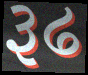
રૂઢ